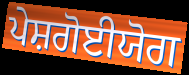
ਪੇਸ਼ਗੋਈਯੋਗ